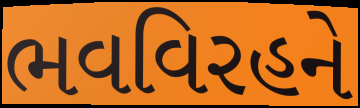
ભવવિરહને